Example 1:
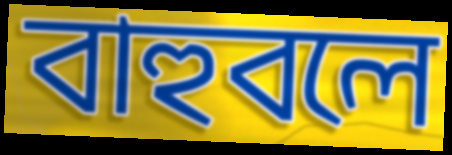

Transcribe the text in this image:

বাহুবলে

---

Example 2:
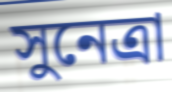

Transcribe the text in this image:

সুনেত্রা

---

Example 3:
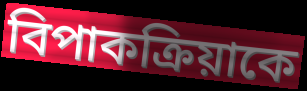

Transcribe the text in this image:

বিপাকক্রিয়াকে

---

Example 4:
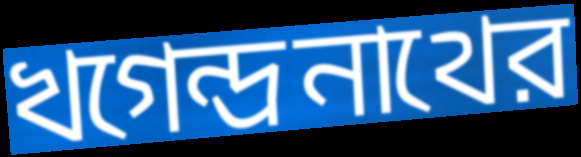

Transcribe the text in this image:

খগেন্দ্রনাথের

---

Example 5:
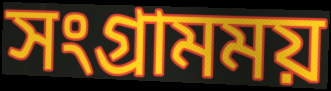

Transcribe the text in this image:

সংগ্রামময়